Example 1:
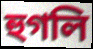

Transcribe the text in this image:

হুগলি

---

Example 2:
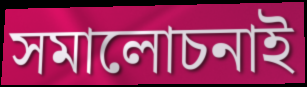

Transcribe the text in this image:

সমালোচনাই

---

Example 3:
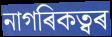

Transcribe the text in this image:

নাগৰিকত্বৰ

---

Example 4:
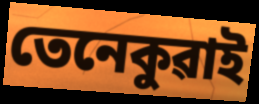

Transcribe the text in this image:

তেনেকুৱাই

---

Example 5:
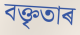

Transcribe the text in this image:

বক্তৃতাৰ